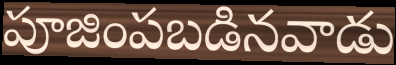
పూజింపబడినవాడు